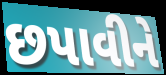
છપાવીને